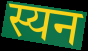
स्यन